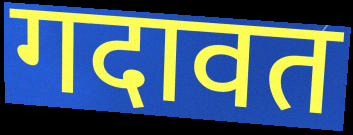
गदावत